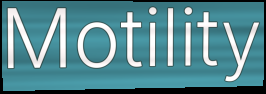
Motility